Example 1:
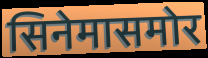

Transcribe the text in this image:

सिनेमासमोर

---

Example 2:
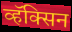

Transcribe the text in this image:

व्हॅक्सिन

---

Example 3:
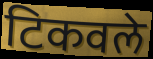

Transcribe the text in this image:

टिकवले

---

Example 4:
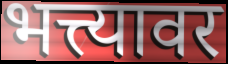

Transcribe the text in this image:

भत्त्यावर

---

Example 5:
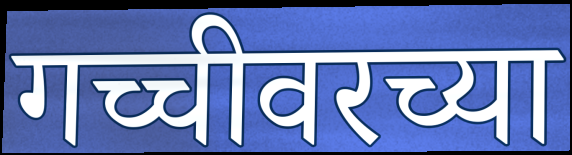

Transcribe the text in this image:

गच्चीवरच्या